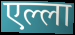
एल्ला